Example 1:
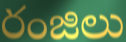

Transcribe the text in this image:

రంజిలు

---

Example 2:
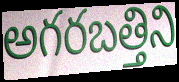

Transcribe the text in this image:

అగరబత్తిని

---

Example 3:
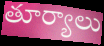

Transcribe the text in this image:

తూర్యాలు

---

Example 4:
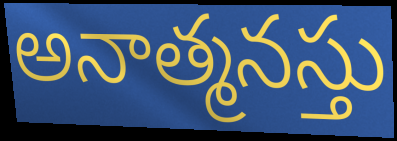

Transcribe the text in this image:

అనాత్మనస్తు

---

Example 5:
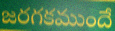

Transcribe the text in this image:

జరగకముందే